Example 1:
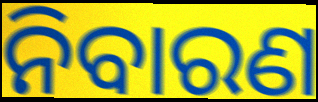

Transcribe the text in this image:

ନିବାରଣ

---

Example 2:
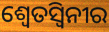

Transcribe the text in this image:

ଶ୍ୱେତସ୍ୱିନୀର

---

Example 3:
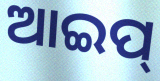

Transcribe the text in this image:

ଆଇପ୍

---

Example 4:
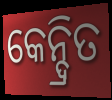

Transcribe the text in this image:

କେନ୍ଦ୍ରିତ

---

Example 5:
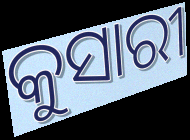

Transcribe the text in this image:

କୁସାରୀ